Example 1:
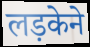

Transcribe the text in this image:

लड़केने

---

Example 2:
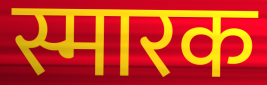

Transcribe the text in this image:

स्मारक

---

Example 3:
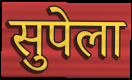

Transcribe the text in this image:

सुपेला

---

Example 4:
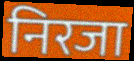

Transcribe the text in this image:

निरजा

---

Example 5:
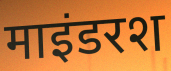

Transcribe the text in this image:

माइंडरश